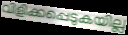
വിളിക്കപ്പെടുകയില്ല